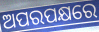
ଅପରପକ୍ଷରେ